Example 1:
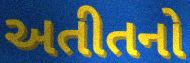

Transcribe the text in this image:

અતીતનો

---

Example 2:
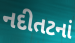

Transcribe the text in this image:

નદીતટનાં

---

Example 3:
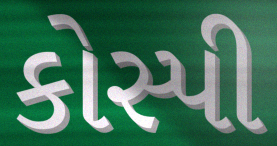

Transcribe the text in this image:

કોસ્પી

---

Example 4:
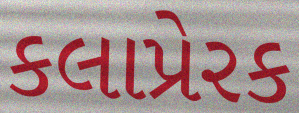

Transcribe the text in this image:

કલાપ્રેરક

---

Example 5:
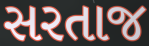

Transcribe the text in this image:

સરતાજ